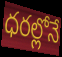
ధరల్లోనే